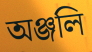
অঞ্জলি